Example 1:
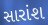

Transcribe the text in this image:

સારાંશ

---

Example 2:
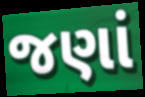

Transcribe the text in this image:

જણાં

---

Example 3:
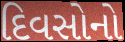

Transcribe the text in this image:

દિવસોનો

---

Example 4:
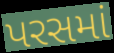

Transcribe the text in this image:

પરસમાં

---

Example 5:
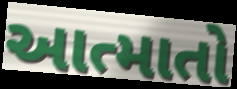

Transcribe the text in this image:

આત્માતો